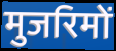
मुजरिमों